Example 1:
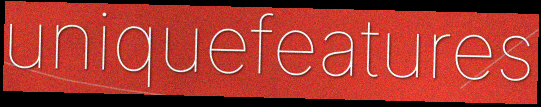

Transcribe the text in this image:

uniquefeatures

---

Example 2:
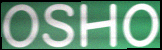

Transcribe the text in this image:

OSHO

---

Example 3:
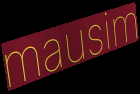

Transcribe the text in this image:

mausim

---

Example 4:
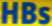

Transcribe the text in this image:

HBs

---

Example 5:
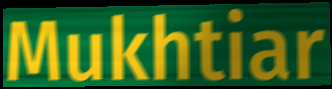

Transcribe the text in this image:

Mukhtiar